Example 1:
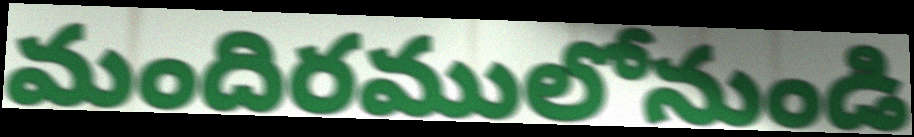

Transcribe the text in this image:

మందిరములోనుండి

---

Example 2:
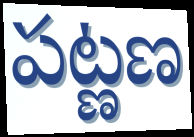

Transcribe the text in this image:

పట్ణణ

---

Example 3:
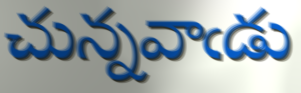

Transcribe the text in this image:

చున్నవాఁడు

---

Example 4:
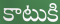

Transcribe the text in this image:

కాటుకి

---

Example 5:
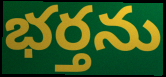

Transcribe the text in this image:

భర్తను